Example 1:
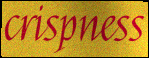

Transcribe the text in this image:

crispness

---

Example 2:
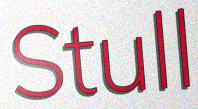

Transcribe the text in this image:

Stull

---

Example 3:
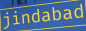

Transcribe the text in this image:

jindabad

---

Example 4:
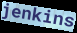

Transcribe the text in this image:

jenkins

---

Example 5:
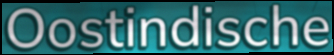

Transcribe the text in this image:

Oostindische